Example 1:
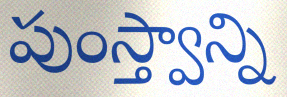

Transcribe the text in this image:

పుంస్త్వాన్ని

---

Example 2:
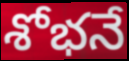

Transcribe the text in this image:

శోభనే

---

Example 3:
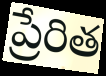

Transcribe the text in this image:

ప్రేరిత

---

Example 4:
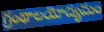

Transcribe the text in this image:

గ్రంథాలయోద్యమం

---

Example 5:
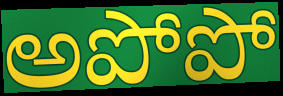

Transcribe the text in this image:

అపోపో